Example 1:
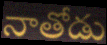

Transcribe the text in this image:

నాతోడు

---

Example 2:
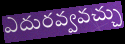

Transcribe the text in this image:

ఎదురవ్వవచ్చు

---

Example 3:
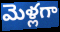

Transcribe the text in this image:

మెళ్లగా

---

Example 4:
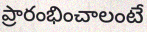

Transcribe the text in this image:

ప్రారంభించాలంటే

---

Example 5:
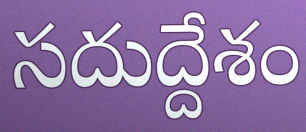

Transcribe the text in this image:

సదుద్దేశం